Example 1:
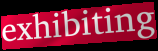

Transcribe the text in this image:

exhibiting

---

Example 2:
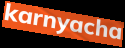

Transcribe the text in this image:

karnyacha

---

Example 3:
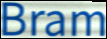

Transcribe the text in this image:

Bram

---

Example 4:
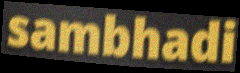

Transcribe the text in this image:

sambhadi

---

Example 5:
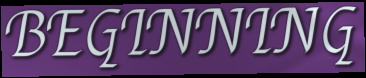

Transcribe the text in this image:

BEGINNING